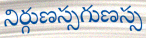
నిర్గుణస్సగుణస్స